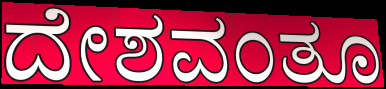
ದೇಶವಂತೂ